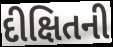
દીક્ષિતની